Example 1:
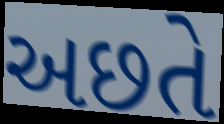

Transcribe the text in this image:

અછતે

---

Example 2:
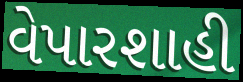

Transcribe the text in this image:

વેપારશાહી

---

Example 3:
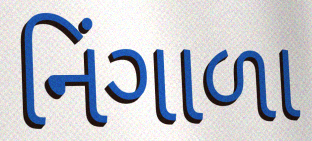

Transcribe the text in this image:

નિંગાળા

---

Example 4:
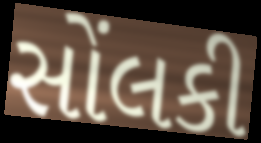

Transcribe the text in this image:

સોંલકી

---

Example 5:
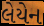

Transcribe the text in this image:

લેયેન